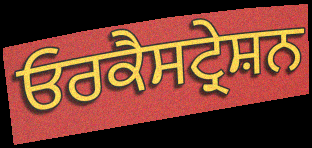
ਓਰਕੈਸਟ੍ਰੇਸ਼ਨ